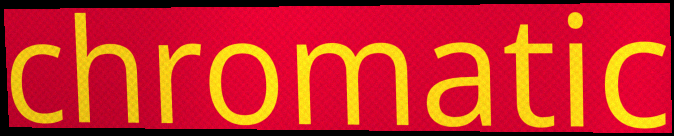
chromatic